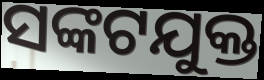
ସଙ୍କଟଯୁକ୍ତ